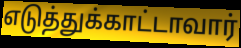
எடுத்துக்காட்டாவார்